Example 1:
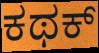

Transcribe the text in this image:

ಕಥಕ್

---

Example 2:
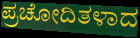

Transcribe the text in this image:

ಪ್ರಚೋದಿತಳಾದ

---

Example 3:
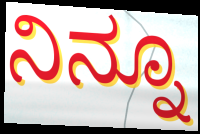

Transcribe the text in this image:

ನಿನ್ನೂ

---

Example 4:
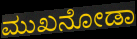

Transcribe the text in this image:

ಮುಖನೋಡಾ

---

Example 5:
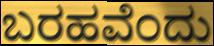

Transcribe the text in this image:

ಬರಹವೆಂದು